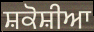
ਸ਼ਕੋਸ਼ੀਆ